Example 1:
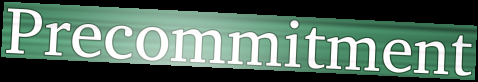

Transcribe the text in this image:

Precommitment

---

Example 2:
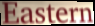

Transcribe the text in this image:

Eastern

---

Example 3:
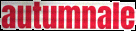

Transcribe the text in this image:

autumnale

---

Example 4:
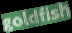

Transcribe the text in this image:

goldfish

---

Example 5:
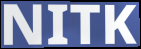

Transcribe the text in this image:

NITK